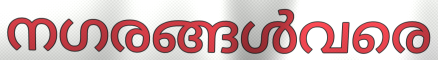
നഗരങ്ങൾവരെ